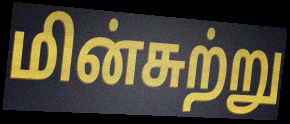
மின்சுற்று